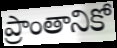
ప్రాంతానికో